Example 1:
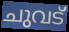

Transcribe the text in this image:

ചുവട്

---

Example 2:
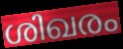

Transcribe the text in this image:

ശിഖരം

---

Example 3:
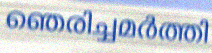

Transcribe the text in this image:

ഞെരിച്ചമർത്തി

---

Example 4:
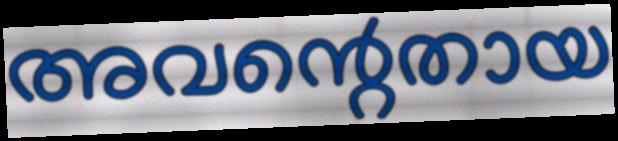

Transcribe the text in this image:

അവന്റെതായ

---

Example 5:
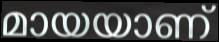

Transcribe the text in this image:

മായയാണ്